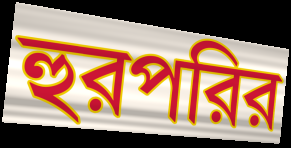
হুরপরির